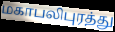
மகாபலிபுரத்து